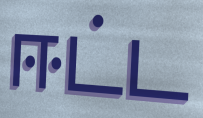
ஈட்ட